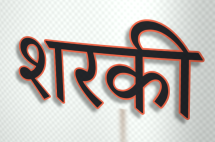
शरकी